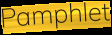
Pamphlet